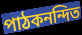
পাঠকনন্দিত